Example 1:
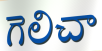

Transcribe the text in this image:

గెలిచా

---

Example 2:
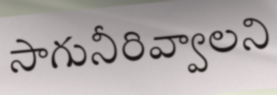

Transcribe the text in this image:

సాగునీరివ్వాలని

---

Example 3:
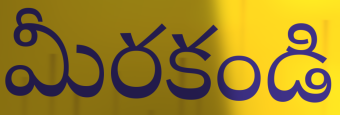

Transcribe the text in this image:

మీరకండి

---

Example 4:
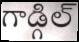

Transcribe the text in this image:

గాడ్గిల్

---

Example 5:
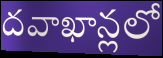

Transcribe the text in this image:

దవాఖాన్లలో